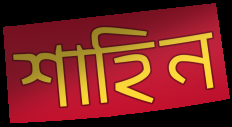
শাহিন